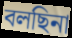
বলছিনা